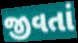
જીવતાં